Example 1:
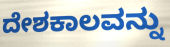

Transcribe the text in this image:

ದೇಶಕಾಲವನ್ನು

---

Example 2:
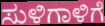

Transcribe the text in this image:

ಸುಳಿಗಾಳಿಗೆ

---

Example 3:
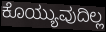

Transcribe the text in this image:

ಕೊಯ್ಯುವುದಿಲ್ಲ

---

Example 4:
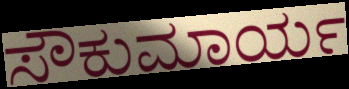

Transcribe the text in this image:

ಸೌಕುಮಾರ್ಯ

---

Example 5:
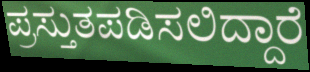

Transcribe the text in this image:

ಪ್ರಸ್ತುತಪಡಿಸಲಿದ್ದಾರೆ